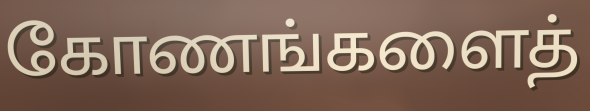
கோணங்களைத்